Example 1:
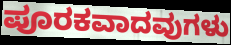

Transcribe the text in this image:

ಪೂರಕವಾದವುಗಳು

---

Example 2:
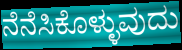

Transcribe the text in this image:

ನೆನೆಸಿಕೊಳ್ಳುವುದು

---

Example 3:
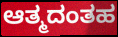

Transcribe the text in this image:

ಆತ್ಮದಂತಹ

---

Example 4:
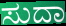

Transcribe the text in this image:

ಸುದಾ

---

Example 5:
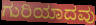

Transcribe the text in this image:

ಗುರಿಯಾದವು